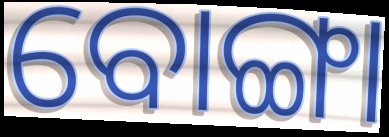
ବୋଙ୍ଗା